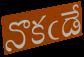
నొకఁడే